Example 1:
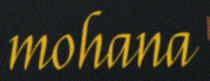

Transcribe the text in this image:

mohana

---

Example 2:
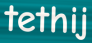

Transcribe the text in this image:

tethij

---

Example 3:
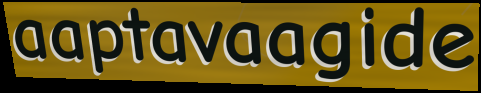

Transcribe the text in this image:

aaptavaagide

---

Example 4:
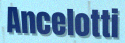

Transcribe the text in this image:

Ancelotti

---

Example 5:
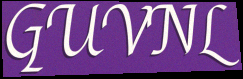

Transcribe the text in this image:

GUVNL